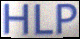
HLP